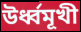
উর্ধ্বমূখী